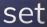
set